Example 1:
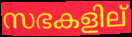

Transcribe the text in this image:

സഭകളില്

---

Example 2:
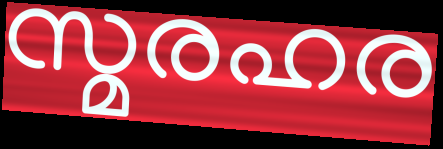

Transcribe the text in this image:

സ്മരഹര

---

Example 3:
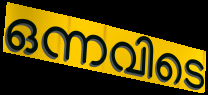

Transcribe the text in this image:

ഒന്നവിടെ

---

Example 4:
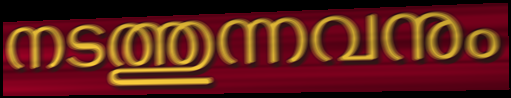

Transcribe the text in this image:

നടത്തുന്നവനും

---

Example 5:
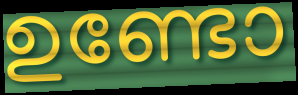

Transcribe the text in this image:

ഉണ്ടോ